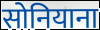
सोनियाना